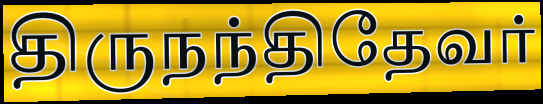
திருநந்திதேவர்